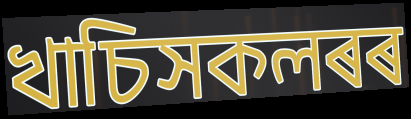
খাচিসকলৰৰ